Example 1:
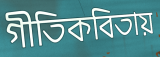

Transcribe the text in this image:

গীতিকবিতায়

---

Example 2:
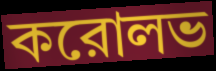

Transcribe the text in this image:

করোলভ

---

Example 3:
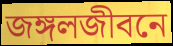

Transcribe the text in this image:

জঙ্গলজীবনে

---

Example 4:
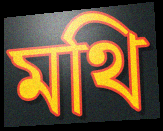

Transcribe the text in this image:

মথি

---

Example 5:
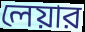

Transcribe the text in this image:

লেয়ার